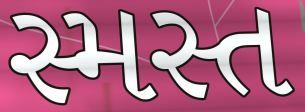
સ્મસ્ત